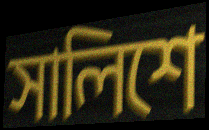
সালিশে